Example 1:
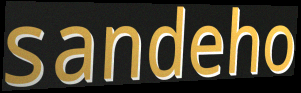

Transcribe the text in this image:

sandeho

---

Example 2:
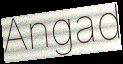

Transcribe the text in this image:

Angad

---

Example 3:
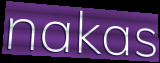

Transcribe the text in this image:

nakas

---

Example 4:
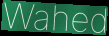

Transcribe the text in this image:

Wahed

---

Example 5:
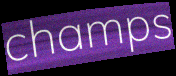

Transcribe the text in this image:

champs